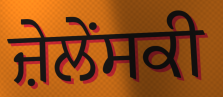
ਜ਼ੇਲੇਂਸਕੀ